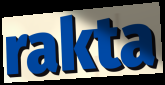
rakta